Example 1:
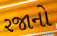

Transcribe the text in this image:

રજાનો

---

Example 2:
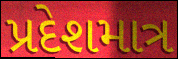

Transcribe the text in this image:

પ્રદેશમાત્ર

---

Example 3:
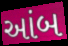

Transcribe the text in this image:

આંબ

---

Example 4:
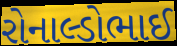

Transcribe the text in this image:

રોનાલ્ડોભાઈ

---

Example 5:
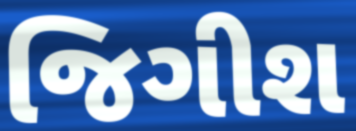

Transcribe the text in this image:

જિગીશ